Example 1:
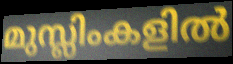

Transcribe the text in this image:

മുസ്ലിംകളിൽ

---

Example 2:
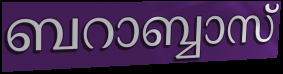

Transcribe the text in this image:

ബറാബ്ബാസ്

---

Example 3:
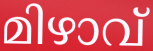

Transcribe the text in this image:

മിഴാവ്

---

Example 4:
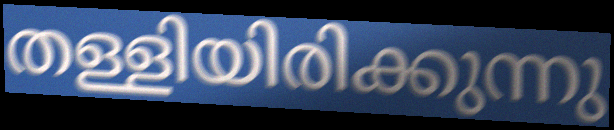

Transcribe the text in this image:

തള്ളിയിരിക്കുന്നു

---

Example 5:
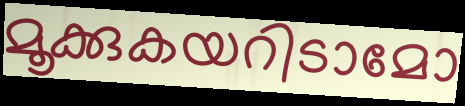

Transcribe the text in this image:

മൂക്കുകയറിടാമോ